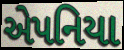
એપનિયા